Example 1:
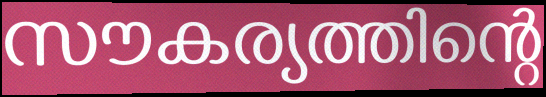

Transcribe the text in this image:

സൗകര്യത്തിന്റെ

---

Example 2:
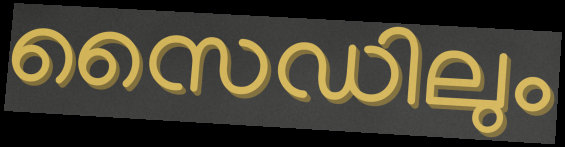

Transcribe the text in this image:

സൈഡിലും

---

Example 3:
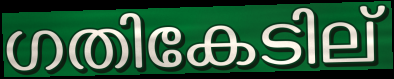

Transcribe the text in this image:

ഗതികേടില്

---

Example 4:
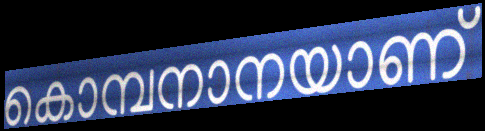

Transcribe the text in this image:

കൊമ്പനാനയാണ്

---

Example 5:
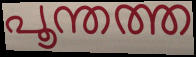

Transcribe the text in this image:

പൂന്തത്ത